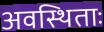
अवस्थिताः